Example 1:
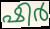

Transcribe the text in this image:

ഷിർ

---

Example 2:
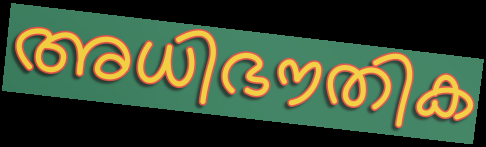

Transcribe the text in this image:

അധിഭൗതിക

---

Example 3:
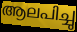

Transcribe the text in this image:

ആലപിച്ചു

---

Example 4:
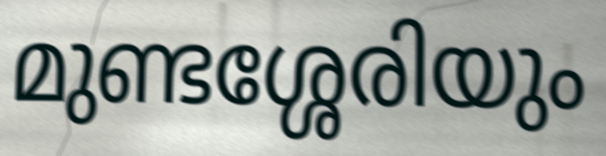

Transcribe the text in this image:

മുണ്ടശ്ശേരിയും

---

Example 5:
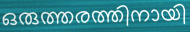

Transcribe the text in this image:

ഒരുത്തരത്തിനായി